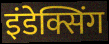
इंडेक्सिंग